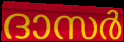
ദാസർ